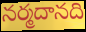
నర్మదానది